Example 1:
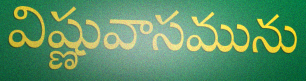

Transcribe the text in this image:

విష్ణువాసమును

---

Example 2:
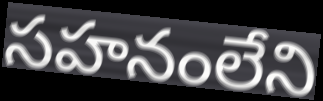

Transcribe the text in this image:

సహనంలేని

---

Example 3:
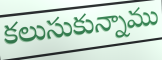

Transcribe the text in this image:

కలుసుకున్నాము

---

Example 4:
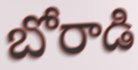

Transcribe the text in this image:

బోరాడి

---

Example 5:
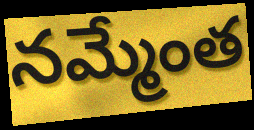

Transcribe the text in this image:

నమ్మేంత